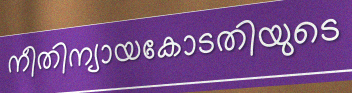
നീതിന്യായകോടതിയുടെ